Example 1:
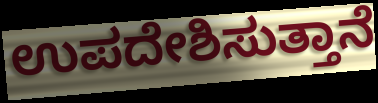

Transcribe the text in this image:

ಉಪದೇಶಿಸುತ್ತಾನೆ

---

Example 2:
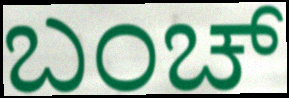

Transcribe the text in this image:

ಬಂಚ್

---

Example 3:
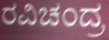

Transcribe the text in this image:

ರವಿಚಂದ್ರ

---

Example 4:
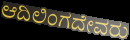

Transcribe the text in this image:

ಆದಿಲಿಂಗದೇವರು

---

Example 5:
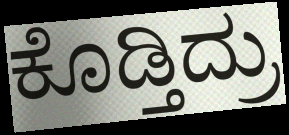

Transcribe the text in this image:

ಕೊಡ್ತಿದ್ರು